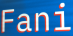
Fani